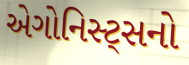
એગોનિસ્ટ્સનો